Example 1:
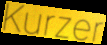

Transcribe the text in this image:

Kurzer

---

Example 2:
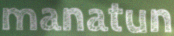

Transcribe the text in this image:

manatun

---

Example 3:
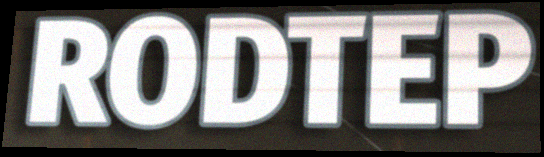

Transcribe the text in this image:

RODTEP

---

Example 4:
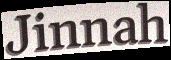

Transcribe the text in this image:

Jinnah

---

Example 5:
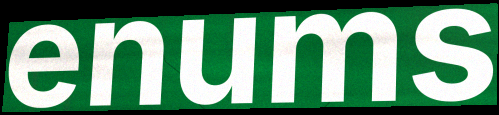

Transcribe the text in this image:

enums